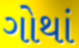
ગોથાં